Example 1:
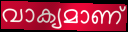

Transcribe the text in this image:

വാക്യമാണ്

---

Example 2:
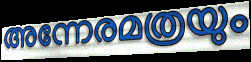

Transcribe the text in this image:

അന്നേരമത്രയും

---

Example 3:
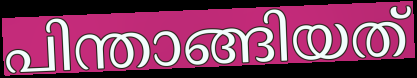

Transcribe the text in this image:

പിന്താങ്ങിയത്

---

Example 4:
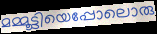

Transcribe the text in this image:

മമ്മൂട്ടിയെപ്പോലൊരു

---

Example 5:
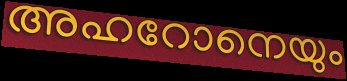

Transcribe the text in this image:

അഹറോനെയും